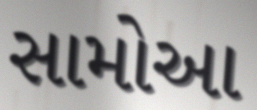
સામોઆ